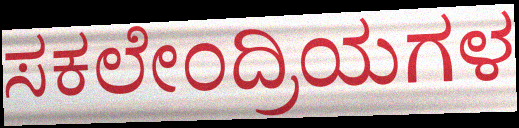
ಸಕಲೇಂದ್ರಿಯಗಳ